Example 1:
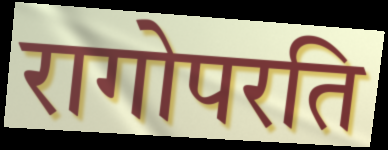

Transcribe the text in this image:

रागोपरति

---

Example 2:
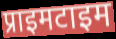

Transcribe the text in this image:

प्राइमटाइम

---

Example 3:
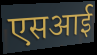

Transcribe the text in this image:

एसआई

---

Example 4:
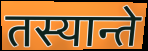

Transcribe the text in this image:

तस्यान्ते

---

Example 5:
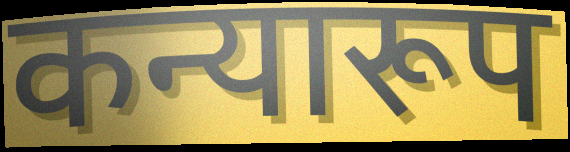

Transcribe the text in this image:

कन्यारूप